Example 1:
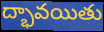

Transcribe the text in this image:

ద్భావయితు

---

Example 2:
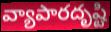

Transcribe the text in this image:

వ్యాపారదృష్టి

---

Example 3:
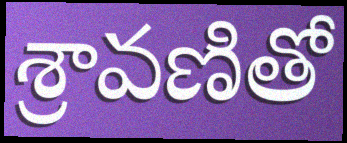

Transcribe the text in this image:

శ్రావణితో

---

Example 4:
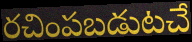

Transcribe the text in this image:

రచింపబడుటచే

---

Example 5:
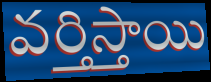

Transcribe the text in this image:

వర్తిస్తాయి